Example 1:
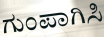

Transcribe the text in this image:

ಗುಂಪಾಗಿಸಿ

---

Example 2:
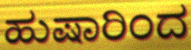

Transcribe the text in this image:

ಹುಷಾರಿಂದ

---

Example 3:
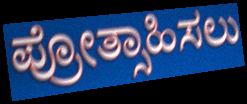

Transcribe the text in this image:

ಪ್ರೋತ್ಸಾಹಿಸಲು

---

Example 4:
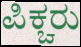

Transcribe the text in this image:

ಪಿಕ್ಚರು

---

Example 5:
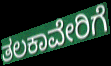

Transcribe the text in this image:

ತಲಕಾವೇರಿಗೆ